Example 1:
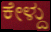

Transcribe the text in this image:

ಕೇಳ್ದು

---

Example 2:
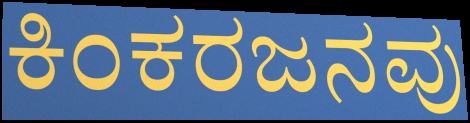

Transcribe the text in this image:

ಕಿಂಕರಜನವು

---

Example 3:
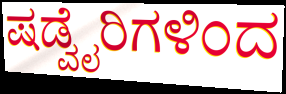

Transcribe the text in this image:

ಷಡ್ವೈರಿಗಳಿಂದ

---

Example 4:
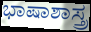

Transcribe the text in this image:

ಭಾಷಾಶಾಸ್ತ್ರ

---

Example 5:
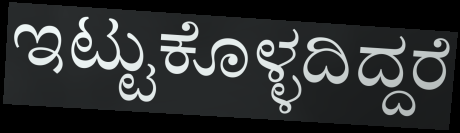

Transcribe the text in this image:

ಇಟ್ಟುಕೊಳ್ಳದಿದ್ದರೆ